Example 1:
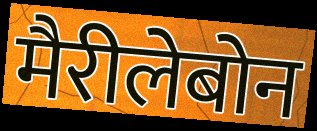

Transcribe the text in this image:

मैरीलेबोन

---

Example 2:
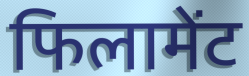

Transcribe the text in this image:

फिलामेंट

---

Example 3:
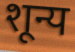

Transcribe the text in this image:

शून्य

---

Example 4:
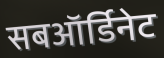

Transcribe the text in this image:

सबऑर्डिनेट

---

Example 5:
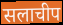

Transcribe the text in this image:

सलाचीप